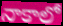
నాకాలో